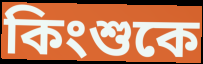
কিংশুকে